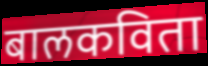
बालकविता